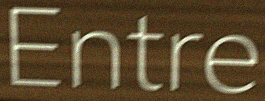
Entre